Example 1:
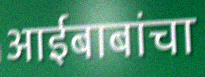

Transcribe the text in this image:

आईबाबांचा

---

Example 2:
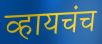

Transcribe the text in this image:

व्हायचंच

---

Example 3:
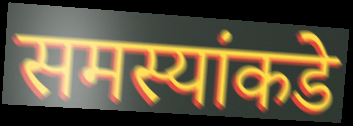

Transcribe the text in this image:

समस्यांकडे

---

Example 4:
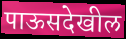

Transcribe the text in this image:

पाऊसदेखील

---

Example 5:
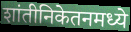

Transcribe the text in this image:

शांतीनिकेतनमध्ये